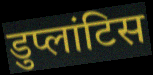
डुप्लांटिस